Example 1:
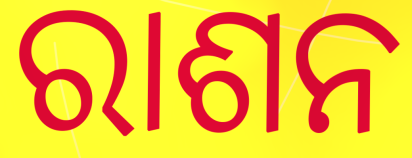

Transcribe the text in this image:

ରାଶନ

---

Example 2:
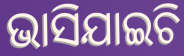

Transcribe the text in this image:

ଭାସିଯାଇଚି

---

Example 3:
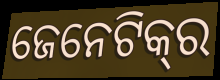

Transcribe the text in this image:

ଜେନେଟିକ୍‌ର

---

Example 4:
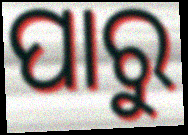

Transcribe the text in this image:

ପାରୁ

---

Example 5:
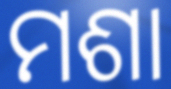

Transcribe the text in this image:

ମଶା